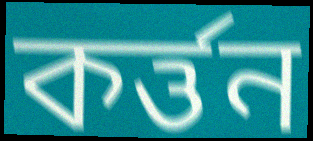
কর্ত্তন